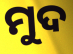
ମୁଦ